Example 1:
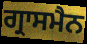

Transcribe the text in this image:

ਗ੍ਰਾਸਮੈਨ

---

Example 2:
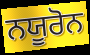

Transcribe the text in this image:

ਨਯੂਰੋਨ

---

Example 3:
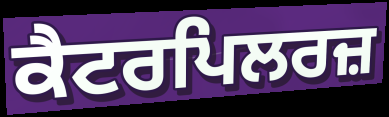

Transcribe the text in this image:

ਕੈਟਰਪਿਲਰਜ਼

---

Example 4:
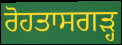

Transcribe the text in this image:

ਰੋਹਤਾਸਗੜ੍ਹ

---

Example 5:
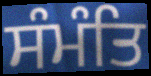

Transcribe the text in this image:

ਸੰਮੰਤਿ